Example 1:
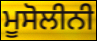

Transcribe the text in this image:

ਮੂਸੋਲੀਨੀ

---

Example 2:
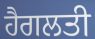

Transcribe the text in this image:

ਹੈਗਲਤੀ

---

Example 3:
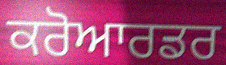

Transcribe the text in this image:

ਕਰੋਆਰਡਰ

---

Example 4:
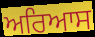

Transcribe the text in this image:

ਅਰਿਆਸ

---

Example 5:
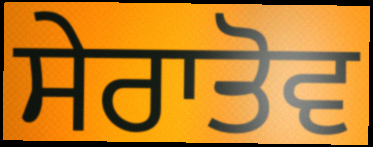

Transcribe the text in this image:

ਸੇਰਾਤੋਵ